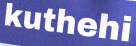
kuthehi